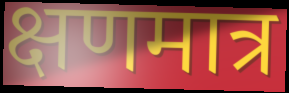
क्षणमात्र